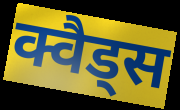
क्वैड्स